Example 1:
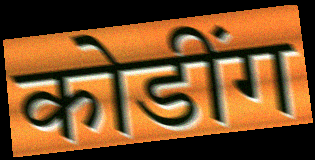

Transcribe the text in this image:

कोडींग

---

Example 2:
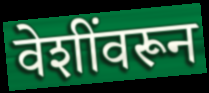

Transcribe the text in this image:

वेशींवरून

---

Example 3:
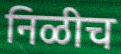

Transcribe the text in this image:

निळीच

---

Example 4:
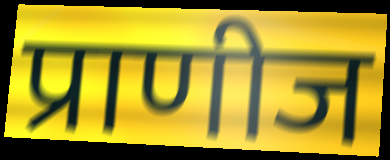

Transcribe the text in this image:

प्राणीज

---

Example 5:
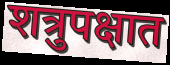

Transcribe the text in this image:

शत्रुपक्षात